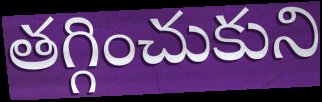
తగ్గించుకుని